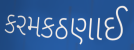
કરમકઠણાઈ